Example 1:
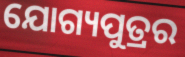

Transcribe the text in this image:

ଯୋଗ୍ୟପୁତ୍ରର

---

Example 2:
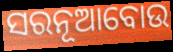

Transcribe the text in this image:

ସରନୂଆବୋଉ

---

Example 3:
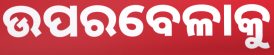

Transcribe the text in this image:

ଉପରବେଳାକୁ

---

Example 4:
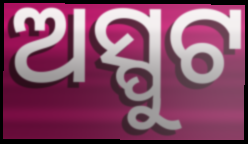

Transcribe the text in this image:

ଅସ୍ପୁଟ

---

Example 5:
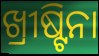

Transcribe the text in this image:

ଖ୍ରୀଷ୍ଟିନା